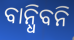
ବାନ୍ଧିବନି